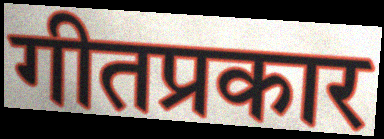
गीतप्रकार